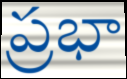
ప్రభా